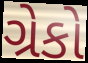
ગ્રેકો